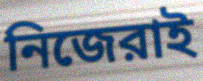
নিজেরাই